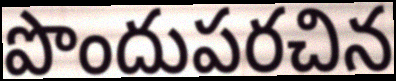
పొందుపరచిన